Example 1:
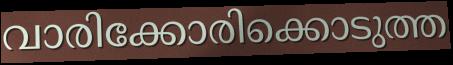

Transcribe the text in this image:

വാരിക്കോരിക്കൊടുത്ത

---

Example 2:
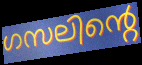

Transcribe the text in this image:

ഗസലിന്റെ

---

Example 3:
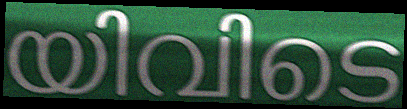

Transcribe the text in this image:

യിവിടെ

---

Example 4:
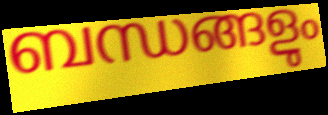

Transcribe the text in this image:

ബന്ധങ്ങളും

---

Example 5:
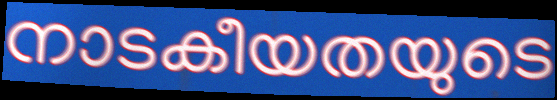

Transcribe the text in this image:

നാടകീയതയുടെ